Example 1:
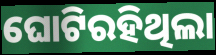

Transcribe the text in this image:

ଘୋଟିରହିଥିଲା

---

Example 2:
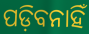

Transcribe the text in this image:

ପଡ଼ିବନାହିଁ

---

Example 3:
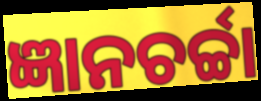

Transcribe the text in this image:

ଜ୍ଞାନଚର୍ଚ୍ଚା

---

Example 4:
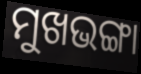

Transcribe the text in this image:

ମୁଖଭଙ୍ଗା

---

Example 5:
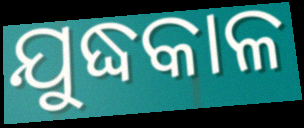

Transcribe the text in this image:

ଯୁଦ୍ଧକାଳ